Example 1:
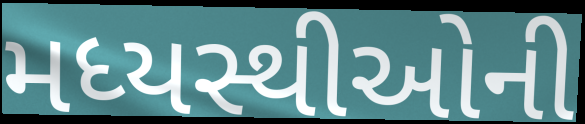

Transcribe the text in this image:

મધ્યસ્થીઓની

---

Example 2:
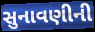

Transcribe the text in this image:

સુનાવણીની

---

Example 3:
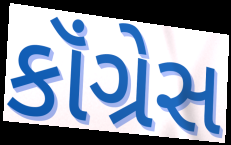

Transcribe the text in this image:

કૉંગ્રેસ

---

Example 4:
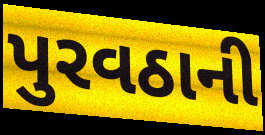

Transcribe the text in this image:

પુરવઠાની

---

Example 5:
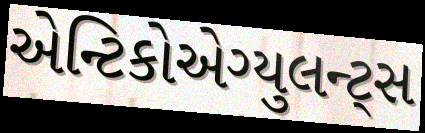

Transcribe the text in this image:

એન્ટિકોએગ્યુલન્ટ્સ